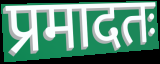
प्रमादतः